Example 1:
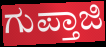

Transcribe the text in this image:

ಗುಪ್ತಾಜಿ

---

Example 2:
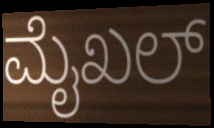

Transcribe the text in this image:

ಮೈಖಲ್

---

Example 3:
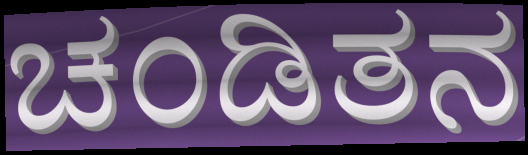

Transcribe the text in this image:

ಚಂಡಿತನ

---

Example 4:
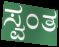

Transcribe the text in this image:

ಸ್ವಂತ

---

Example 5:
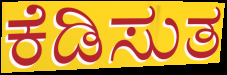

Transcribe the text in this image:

ಕೆಡಿಸುತ